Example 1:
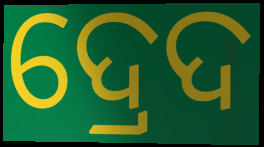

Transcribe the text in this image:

ଦ୍ରେଦ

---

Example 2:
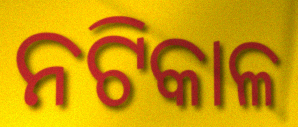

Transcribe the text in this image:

ନଟିକାଳ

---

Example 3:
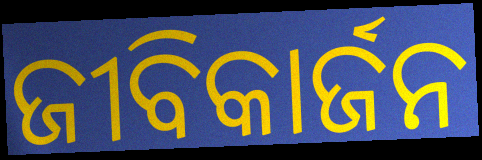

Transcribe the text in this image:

ଜୀବିକାର୍ଜନ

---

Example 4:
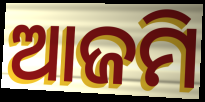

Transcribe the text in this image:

ଆଜମି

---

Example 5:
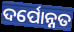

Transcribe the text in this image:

ଦର୍ପୋନ୍ନତ